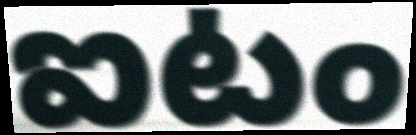
ఐటం